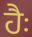
ਹੈਃ